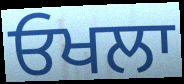
ਓਖਲਾ